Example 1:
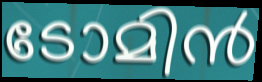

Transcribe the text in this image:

ടോമിൻ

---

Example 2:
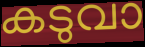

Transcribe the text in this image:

കടുവാ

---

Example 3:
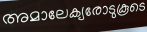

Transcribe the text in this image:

അമാലേക്യരോടുകൂടെ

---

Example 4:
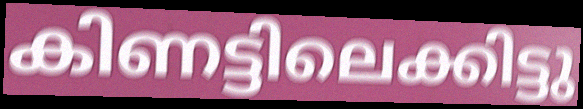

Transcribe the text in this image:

കിണട്ടിലെക്കിട്ടു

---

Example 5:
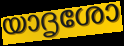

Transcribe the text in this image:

യാദൃശോ